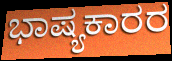
ಭಾಷ್ಯಕಾರರ